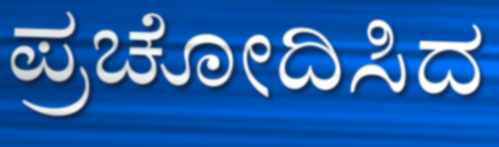
ಪ್ರಚೋದಿಸಿದ